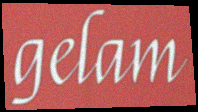
gelam